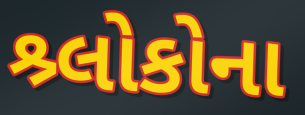
શ્ર્લોકોના